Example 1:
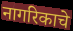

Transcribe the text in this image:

नागरिकाचे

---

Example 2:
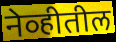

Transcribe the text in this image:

नेव्हीतील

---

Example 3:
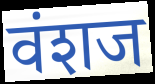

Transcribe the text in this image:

वंशज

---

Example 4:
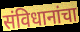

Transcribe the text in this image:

संविधानांचा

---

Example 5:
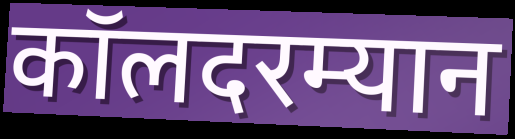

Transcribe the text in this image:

कॉलदरम्यान